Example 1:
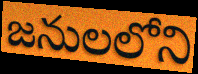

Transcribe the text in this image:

జనులలోని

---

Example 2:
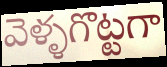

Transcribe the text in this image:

వెళ్ళగొట్టగా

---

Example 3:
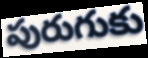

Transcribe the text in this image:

పురుగుకు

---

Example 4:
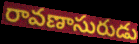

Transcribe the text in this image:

రావణాసురుడు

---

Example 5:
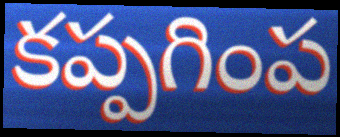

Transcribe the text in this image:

కప్పగింప